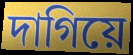
দাগিয়ে